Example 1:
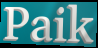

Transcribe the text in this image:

Paik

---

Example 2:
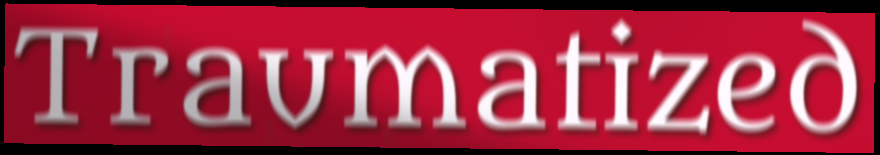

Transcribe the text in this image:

Traumatized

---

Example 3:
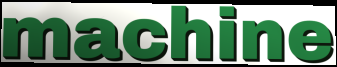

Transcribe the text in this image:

machine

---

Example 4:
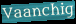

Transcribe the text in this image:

Vaanchig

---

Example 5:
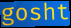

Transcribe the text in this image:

gosht